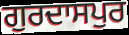
ਗੁਰਦਾਸਪੁਰ